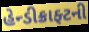
હેન્ડીક્રાફ્ટની